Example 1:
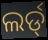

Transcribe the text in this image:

ଲର୍ଡ୍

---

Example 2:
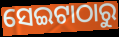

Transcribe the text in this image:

ସେଇଟାଠାରୁ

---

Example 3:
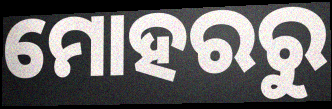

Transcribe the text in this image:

ମୋହରରୁ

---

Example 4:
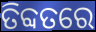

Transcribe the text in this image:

ତିବ୍ଦତରେ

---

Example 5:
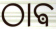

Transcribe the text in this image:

ଠାଵ